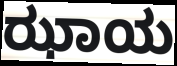
ಝಾಯ